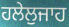
ਹਲੇਲੁਜਾਹ